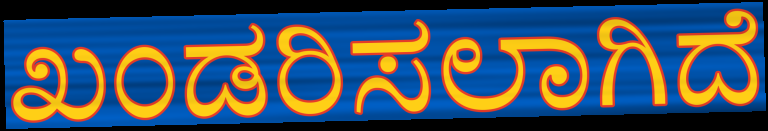
ಖಂಡರಿಸಲಾಗಿದೆ